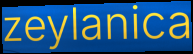
zeylanica